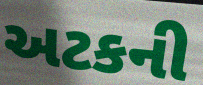
અટકની